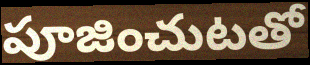
పూజించుటతో